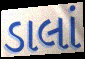
ડાલાં